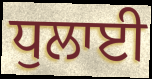
ਧੁਲਾਈ